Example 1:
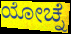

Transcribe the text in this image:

ಯೋಚ್ನೆ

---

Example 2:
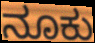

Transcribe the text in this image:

ನೂಕು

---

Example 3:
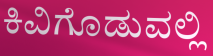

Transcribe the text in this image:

ಕಿವಿಗೊಡುವಲ್ಲಿ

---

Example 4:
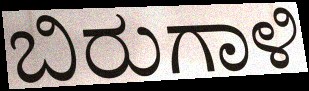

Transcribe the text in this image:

ಬಿರುಗಾಳಿ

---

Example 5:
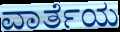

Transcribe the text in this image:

ವಾರ್ತೆಯ